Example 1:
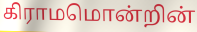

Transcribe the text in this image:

கிராமமொன்றின்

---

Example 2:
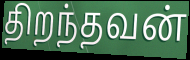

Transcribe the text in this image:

திறந்தவன்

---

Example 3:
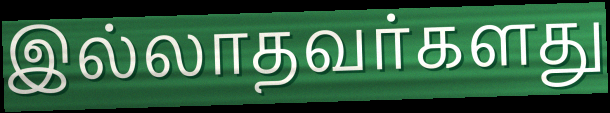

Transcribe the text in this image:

இல்லாதவர்களது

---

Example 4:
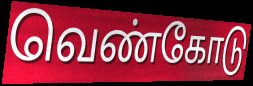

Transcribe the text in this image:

வெண்கோடு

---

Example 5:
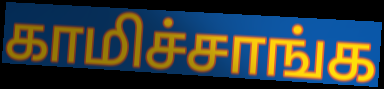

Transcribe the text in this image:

காமிச்சாங்க